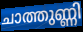
ചാത്തുണ്ണി